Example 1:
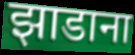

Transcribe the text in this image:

झाडाना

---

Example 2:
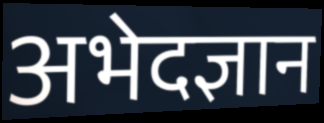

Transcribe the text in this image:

अभेदज्ञान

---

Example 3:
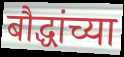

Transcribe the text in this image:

बौद्धांच्या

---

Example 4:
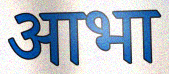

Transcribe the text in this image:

आभा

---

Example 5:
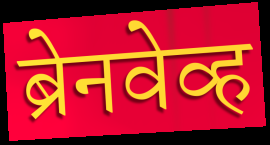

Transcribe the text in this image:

ब्रेनवेव्ह